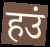
हउं